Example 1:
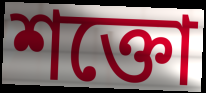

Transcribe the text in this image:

শক্তো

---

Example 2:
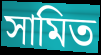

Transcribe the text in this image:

সামিত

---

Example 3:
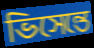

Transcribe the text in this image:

ভিসেন্তে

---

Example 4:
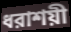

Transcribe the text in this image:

ধরাশয়ী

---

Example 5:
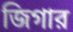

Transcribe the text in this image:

জিগার